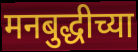
मनबुद्धीच्या